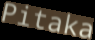
Pitaka